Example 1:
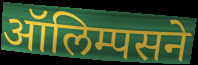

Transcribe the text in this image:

ऑलिम्पसने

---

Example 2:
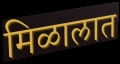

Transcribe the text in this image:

मिळालात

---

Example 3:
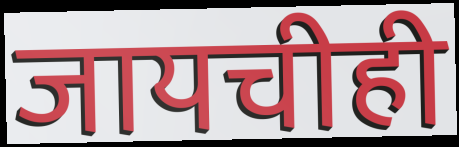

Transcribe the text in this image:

जायचीही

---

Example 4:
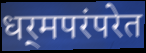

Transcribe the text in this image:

धर्मपरंपरेत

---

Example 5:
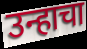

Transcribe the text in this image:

उन्हाचा